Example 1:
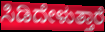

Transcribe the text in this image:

ಸಿಡಿದೇಳುತ್ತಾರೆ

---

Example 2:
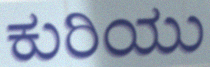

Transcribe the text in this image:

ಕುರಿಯು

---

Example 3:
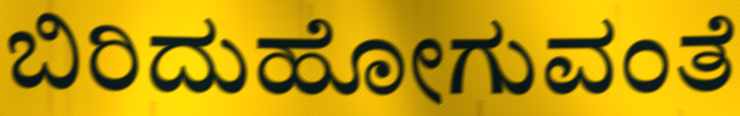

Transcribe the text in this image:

ಬಿರಿದುಹೋಗುವಂತೆ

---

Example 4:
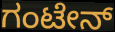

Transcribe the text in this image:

ಗಂಟೇನ್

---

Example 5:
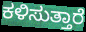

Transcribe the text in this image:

ಕಳಿಸುತ್ತಾರೆ